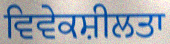
ਵਿਵੇਕਸ਼ੀਲਤਾ